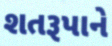
શતરૂપાને